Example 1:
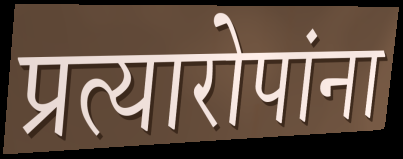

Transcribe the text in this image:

प्रत्यारोपांना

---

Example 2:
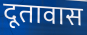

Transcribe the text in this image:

दूतावास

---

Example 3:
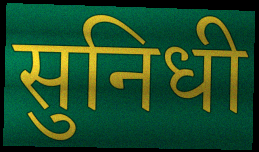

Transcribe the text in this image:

सुनिधी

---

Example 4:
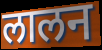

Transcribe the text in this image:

लालन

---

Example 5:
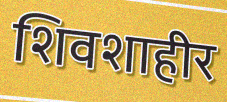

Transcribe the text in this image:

शिवशाहीर